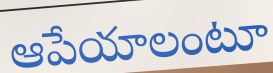
ఆపేయాలంటూ